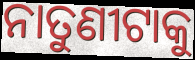
ନାତୁଣୀଟାକୁ